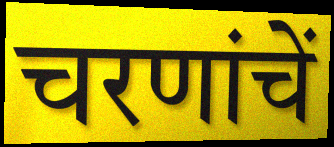
चरणांचें